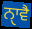
ਨੑਾਵੈ